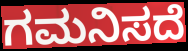
ಗಮನಿಸದೆ